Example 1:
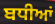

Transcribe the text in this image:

ਬਧੀਆਂ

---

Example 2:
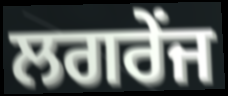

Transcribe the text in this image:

ਲਗਰੇਂਜ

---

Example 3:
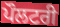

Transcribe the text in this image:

ਪੌਲਟਰੀ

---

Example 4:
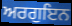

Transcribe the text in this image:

ਅਰਗੁਇਨ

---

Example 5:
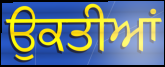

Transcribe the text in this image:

ਉਕਤੀਆਂ